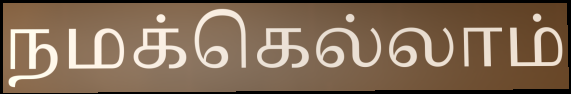
நமக்கெல்லாம்